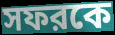
সফরকে